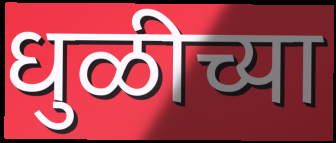
धुळीच्या